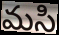
మసి